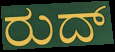
ರುದ್